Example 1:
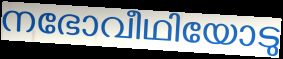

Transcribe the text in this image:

നഭോവീഥിയോടു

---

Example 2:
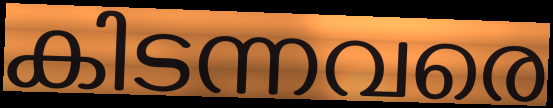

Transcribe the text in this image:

കിടന്നവരെ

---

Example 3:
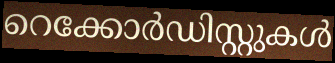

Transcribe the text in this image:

റെക്കോർഡിസ്റ്റുകൾ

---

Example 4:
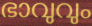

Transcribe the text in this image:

ഭാവുവും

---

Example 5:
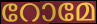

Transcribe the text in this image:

റോമേ